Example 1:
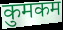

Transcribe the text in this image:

कुमकम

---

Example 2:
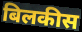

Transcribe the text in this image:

बिलकीस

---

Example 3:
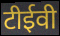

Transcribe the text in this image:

टीईवी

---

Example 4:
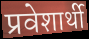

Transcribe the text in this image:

प्रवेशार्थी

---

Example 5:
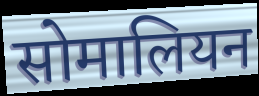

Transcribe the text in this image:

सोमालियन